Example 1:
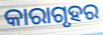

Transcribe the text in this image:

କାରାଗୃହର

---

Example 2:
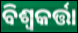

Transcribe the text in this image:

ବିଶ୍ୱକର୍ତ୍ତା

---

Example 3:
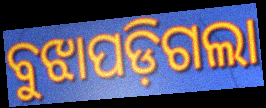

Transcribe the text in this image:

ବୁଝାପଡ଼ିଗଲା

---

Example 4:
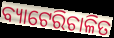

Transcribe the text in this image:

ବ୍ୟାଟେରିଚାଳିତ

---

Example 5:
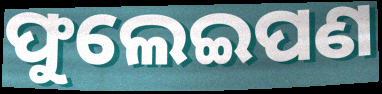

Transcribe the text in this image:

ଫୁଲେଇପଣ